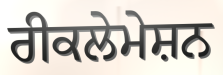
ਰੀਕਲੇਮੇਸ਼ਨ